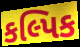
કલ્પિક